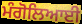
ਮੰਗੋਲਿਆਈ